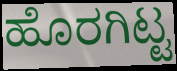
ಹೊರಗಿಟ್ಟ